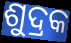
ଶୁଦ୍ରକ